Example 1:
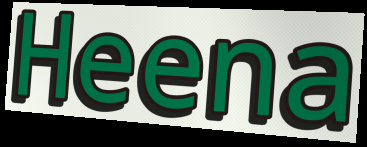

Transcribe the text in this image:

Heena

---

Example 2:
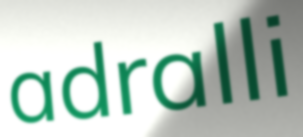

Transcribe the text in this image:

adralli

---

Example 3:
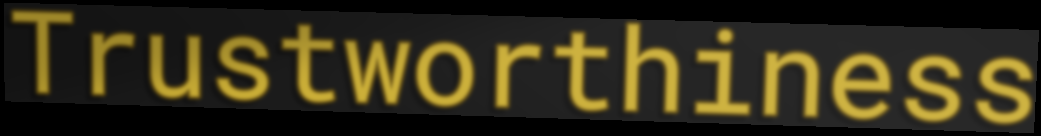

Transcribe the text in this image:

Trustworthiness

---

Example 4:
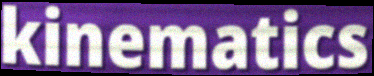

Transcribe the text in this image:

kinematics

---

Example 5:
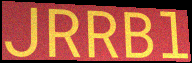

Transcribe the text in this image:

JRRBl